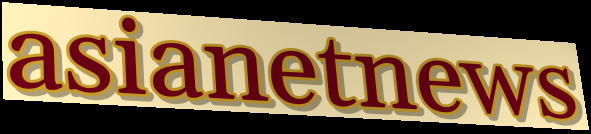
asianetnews